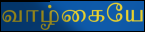
வாழ்கையே